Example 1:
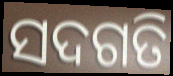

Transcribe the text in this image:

ସଦଗତି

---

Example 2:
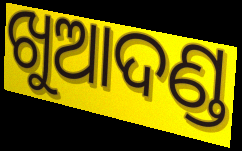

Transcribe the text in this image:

ଖୁଆଦଣ୍ଡ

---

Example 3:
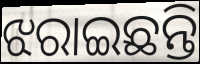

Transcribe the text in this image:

ଝରାଇଛନ୍ତି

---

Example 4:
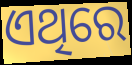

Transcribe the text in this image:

ଏଥିରେ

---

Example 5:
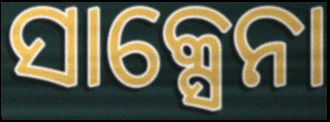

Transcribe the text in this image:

ସାକ୍ସେନା